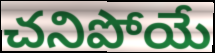
చనిపోయే